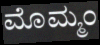
ಮೊಮ್ಮಂ